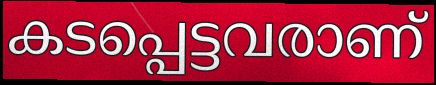
കടപ്പെട്ടവരാണ്